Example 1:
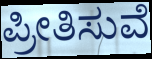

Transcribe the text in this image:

ಪ್ರೀತಿಸುವೆ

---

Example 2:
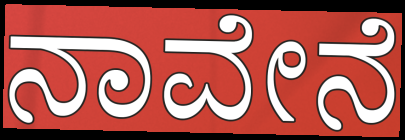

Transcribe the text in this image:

ನಾವೇನೆ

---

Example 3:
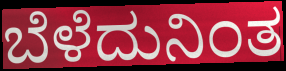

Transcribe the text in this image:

ಬೆಳೆದುನಿಂತ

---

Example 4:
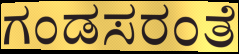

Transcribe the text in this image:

ಗಂಡಸರಂತೆ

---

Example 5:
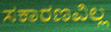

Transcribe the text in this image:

ಸಕಾರಣವಿಲ್ಲ